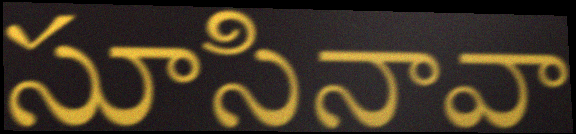
సూసినావా